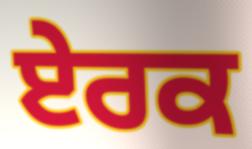
ਏਰਕ